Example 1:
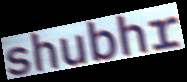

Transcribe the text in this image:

shubhr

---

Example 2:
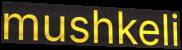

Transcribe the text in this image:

mushkeli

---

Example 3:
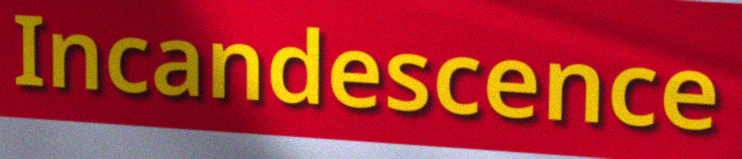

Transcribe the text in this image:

Incandescence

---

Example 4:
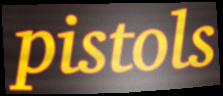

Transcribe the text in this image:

pistols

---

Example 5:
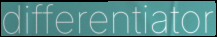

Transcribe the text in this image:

differentiator